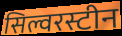
सिल्वरस्टीन